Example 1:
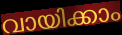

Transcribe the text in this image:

വായിക്കാം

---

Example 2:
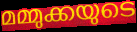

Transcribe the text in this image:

മമ്മുക്കയുടെ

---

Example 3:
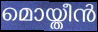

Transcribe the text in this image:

മൊയ്തീൻ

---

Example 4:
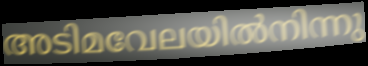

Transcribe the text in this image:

അടിമവേലയിൽനിന്നു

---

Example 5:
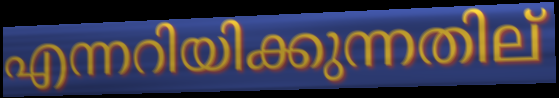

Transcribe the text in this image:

എന്നറിയിക്കുന്നതില്